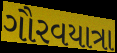
ગૌરવયાત્રા